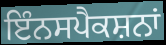
ਇੰਨਸਪੈਕਸ਼ਨਾਂ